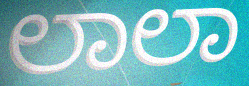
ಲಾಲಾ